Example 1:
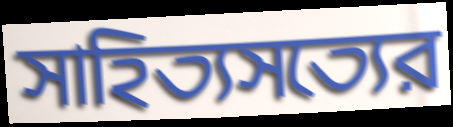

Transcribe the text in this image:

সাহিত্যসত্যের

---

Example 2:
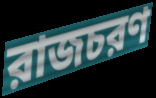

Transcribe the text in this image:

রাজচরণ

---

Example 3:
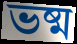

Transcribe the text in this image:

ভষ্ম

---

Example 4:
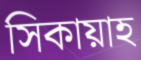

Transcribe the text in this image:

সিকায়াহ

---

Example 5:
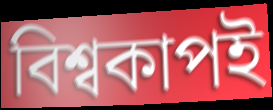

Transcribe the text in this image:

বিশ্বকাপই